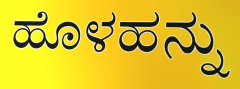
ಹೊಳಹನ್ನು